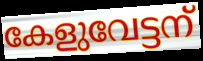
കേളുവേട്ടന്